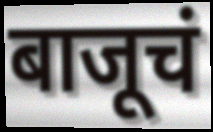
बाजूचं